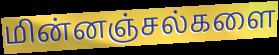
மின்னஞ்சல்களை